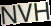
NVH